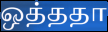
ஒத்ததா